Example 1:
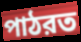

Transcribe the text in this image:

পাঠরত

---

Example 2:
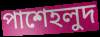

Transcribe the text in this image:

পাশেহলুদ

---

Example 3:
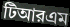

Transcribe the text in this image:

টিআরএম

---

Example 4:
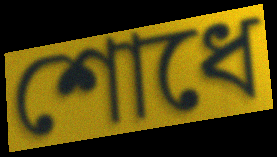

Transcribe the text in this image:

শোধে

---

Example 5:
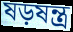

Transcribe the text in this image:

ষড়ষন্ত্র